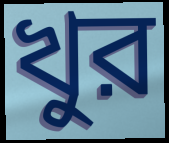
খুর